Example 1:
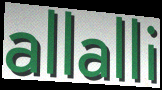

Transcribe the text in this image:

allalli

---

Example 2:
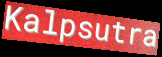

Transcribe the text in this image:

Kalpsutra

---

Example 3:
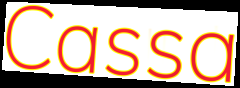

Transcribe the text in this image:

Cassa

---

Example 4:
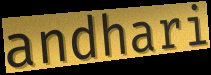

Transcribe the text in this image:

andhari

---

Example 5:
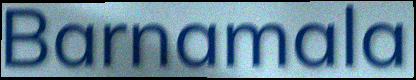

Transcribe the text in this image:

Barnamala